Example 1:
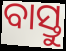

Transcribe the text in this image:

ବାସ୍ତୁ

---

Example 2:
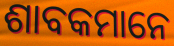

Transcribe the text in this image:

ଶାବକମାନେ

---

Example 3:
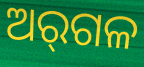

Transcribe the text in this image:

ଅର୍‌ଗଳ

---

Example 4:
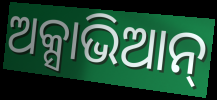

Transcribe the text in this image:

ଅକ୍ସାଭିଆନ୍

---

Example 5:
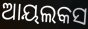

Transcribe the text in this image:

ଆୟଲକସ